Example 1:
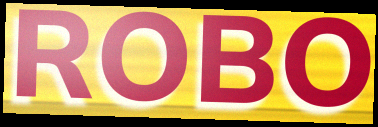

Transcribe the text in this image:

ROBO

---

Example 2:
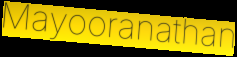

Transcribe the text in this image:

Mayooranathan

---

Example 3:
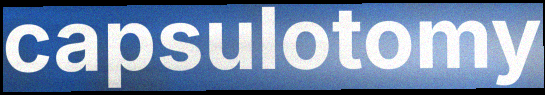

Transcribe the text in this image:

capsulotomy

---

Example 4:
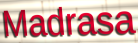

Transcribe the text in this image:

Madrasa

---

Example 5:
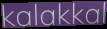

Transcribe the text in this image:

kalakkal